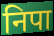
निपा